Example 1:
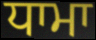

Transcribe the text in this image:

ਧਾਮਾ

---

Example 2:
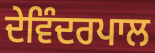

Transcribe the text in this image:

ਦੇਵਿੰਦਰਪਾਲ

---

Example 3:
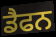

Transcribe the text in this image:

ਡੈਫਨ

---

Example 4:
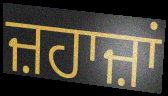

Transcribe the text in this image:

ਜ਼ਹਾਜ਼ਾਂ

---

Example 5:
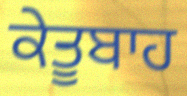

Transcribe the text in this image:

ਕੇਤੂਬਾਹ